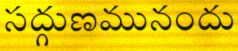
సద్గుణమునందు